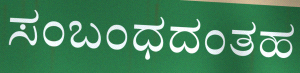
ಸಂಬಂಧದಂತಹ